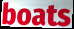
boats